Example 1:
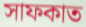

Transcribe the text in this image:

সাফকাত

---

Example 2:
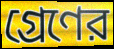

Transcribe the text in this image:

গ্রেণের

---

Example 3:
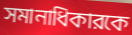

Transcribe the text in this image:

সমানাধিকারকে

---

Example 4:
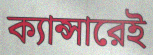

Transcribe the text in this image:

ক্যান্সারেই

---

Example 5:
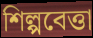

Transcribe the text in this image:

শিল্পবেত্তা